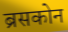
ब्रसकोन